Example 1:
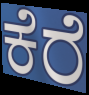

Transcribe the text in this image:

ಕೆರೆ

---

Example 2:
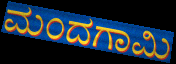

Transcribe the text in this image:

ಮಂದಗಾಮಿ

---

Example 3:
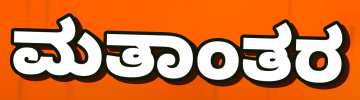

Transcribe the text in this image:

ಮತಾಂತರ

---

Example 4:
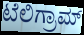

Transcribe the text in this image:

ಟೆಲಿಗ್ರಾಮ್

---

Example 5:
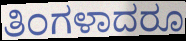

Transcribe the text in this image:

ತಿಂಗಳಾದರೂ